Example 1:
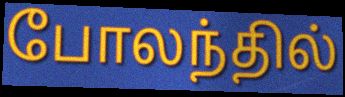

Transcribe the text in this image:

போலந்தில்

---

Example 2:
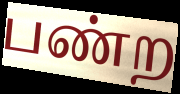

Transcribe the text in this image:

பண்ற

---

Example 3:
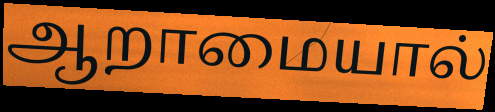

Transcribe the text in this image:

ஆறாமையால்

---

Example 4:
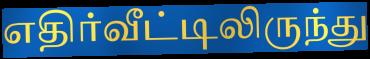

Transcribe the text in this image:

எதிர்வீட்டிலிருந்து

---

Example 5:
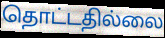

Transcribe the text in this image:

தொட்டதில்லை